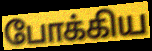
போக்கிய